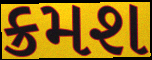
ક્રમશ